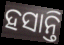
ହସାନ୍ତି